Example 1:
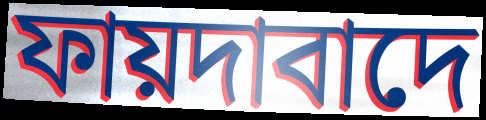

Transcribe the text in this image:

ফায়দাবাদে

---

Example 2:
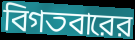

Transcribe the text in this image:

বিগতবারের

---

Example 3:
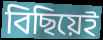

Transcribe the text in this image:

বিছিয়েই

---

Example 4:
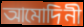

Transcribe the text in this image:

আমোদিনী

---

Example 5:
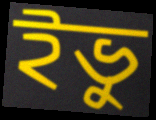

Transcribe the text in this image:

ইভু